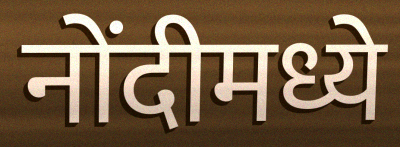
नोंदीमध्ये